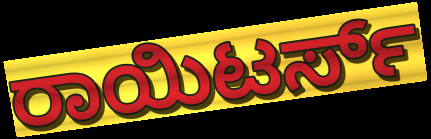
ರಾಯಿಟರ್ಸ್